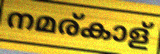
നമര്കാള്